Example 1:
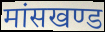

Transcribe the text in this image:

मांसखण्ड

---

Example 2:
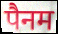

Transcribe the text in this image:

पैनम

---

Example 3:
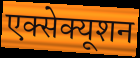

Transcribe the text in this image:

एक्सेक्यूशन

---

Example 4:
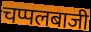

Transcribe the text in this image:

चप्पलबाजी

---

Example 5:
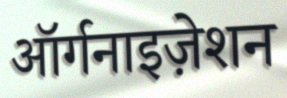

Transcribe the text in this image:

ऑर्गनाइज़ेशन